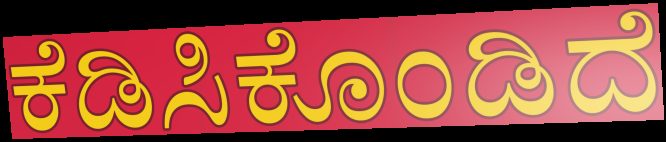
ಕೆಡಿಸಿಕೊಂಡಿದೆ